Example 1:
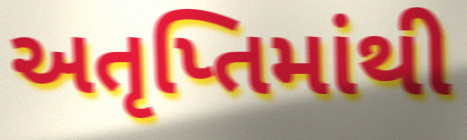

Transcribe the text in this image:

અતૃપ્તિમાંથી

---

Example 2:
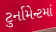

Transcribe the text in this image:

ટુર્નામેન્ટમાં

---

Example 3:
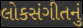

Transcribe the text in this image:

લોકસંગીતનું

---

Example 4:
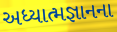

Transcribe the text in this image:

અધ્યાત્મજ્ઞાનના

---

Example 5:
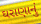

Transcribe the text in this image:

ઘરાણાનું